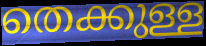
തെക്കുള്ള